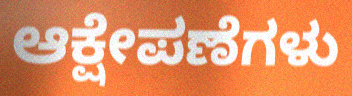
ಆಕ್ಷೇಪಣೆಗಳು